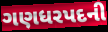
ગણધરપદની